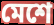
মেশে